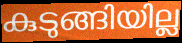
കുടുങ്ങിയില്ല